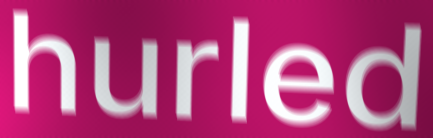
hurled